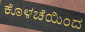
ಕೊಳಚೆಯಿಂದ